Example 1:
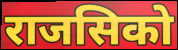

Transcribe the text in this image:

राजसिको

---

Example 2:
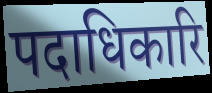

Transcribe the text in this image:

पदाधिकारि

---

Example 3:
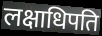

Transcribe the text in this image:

लक्षाधिपति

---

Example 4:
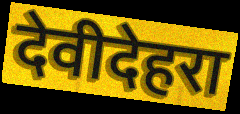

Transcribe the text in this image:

देवीदेहरा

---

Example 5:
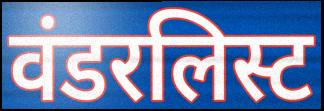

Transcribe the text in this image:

वंडरलिस्ट